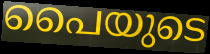
പൈയുടെ